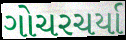
ગોચરચર્યા